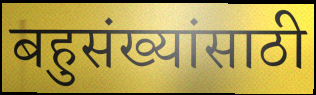
बहुसंख्यांसाठी